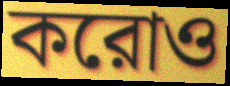
করোও